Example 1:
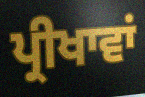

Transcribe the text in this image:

ਪ੍ਰੀਖਾਵਾਂ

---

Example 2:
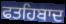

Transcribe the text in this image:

ਫਤਹਿਬਾਦ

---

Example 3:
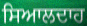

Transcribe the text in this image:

ਸਿਆਲਦਾਹ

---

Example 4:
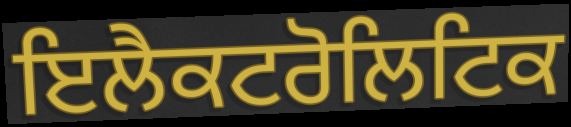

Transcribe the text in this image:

ਇਲੈਕਟਰੋਲਿਟਿਕ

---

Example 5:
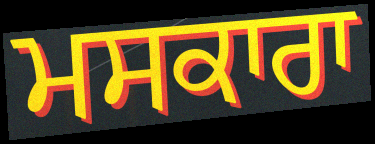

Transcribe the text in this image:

ਮਸਕਾਰਾ